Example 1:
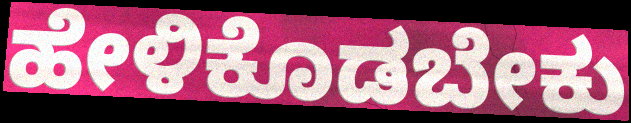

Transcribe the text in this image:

ಹೇಳಿಕೊಡಬೇಕು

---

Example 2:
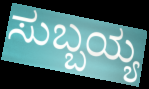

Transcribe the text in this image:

ಸುಬ್ಬಯ್ಯ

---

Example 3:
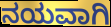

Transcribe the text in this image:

ನಯವಾಗಿ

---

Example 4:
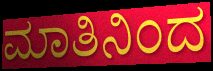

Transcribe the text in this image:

ಮಾತಿನಿಂದ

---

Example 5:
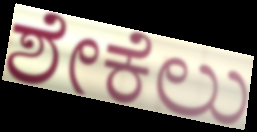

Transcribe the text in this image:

ಶೇಕೆಲು